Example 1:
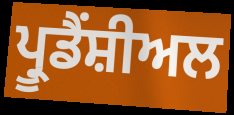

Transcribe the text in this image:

ਪ੍ਰੂਡੈਂਸ਼ੀਅਲ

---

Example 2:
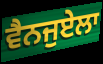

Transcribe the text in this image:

ਵੈਨਜੁਏਲਾ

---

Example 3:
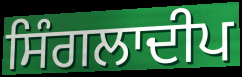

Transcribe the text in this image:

ਸਿੰਗਲਾਦੀਪ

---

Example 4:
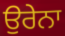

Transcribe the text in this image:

ਉਰੇਨਾ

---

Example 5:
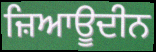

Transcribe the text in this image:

ਜ਼ਿਆਊਦੀਨ